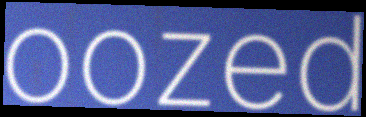
oozed